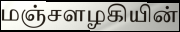
மஞ்சளழகியின்